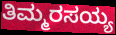
ತಿಮ್ಮರಸಯ್ಯ